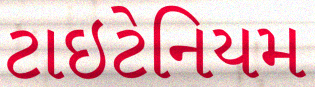
ટાઇટેનિયમ